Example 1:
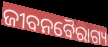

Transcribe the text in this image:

ଜୀବନବୈରାଗ୍ୟ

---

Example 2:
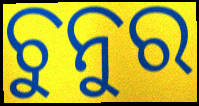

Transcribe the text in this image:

ଚୁନୁର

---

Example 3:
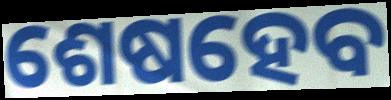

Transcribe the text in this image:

ଶେଷହେବ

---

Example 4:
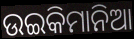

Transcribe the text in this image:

ଉଇକିମାନିଆ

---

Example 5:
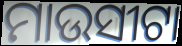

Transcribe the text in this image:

ମାଉସୀଟା